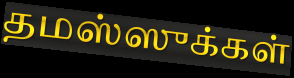
தமஸ்ஸுக்கள்